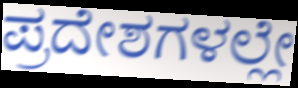
ಪ್ರದೇಶಗಳಲ್ಲೇ